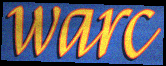
warc